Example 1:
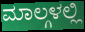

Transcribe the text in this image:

ಮಾಲ್ಗಳಲ್ಲಿ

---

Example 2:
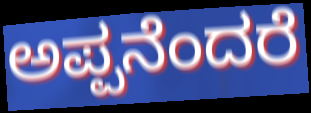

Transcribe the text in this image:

ಅಪ್ಪನೆಂದರೆ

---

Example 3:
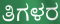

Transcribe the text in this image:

ತಿಗಳರ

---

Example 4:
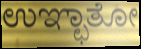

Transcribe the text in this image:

ಉಞ್ಛಾತೋ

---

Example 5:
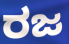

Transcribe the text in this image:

ರಜ